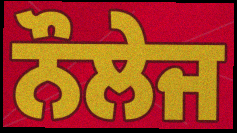
ਨੌਲੇਜ